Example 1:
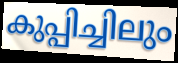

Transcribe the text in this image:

കുപ്പിച്ചിലും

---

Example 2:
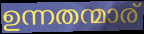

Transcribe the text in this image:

ഉന്നതന്മാര്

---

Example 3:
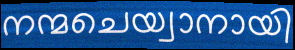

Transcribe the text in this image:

നന്മചെയ്വാനായി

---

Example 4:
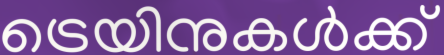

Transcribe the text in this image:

ട്രെയിനുകൾക്ക്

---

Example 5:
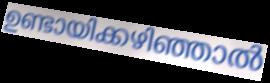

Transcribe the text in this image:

ഉണ്ടായിക്കഴിഞ്ഞാൽ